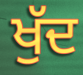
ਖੁੱਦ